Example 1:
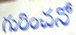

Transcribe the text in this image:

గురించనో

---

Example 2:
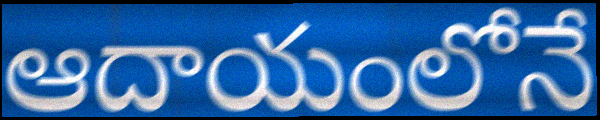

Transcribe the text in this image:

ఆదాయంలోనే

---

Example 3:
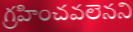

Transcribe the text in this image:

గ్రహించవలెనని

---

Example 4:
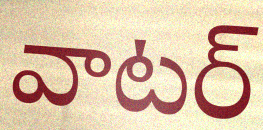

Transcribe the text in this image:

వాటర్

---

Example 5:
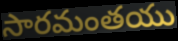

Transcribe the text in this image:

సారమంతయు